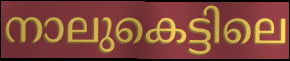
നാലുകെട്ടിലെ